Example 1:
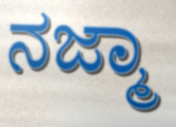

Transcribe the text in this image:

ನಜ್ಮಾ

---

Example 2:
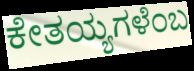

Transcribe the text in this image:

ಕೇತಯ್ಯಗಳೆಂಬ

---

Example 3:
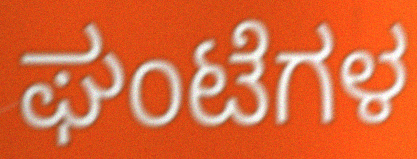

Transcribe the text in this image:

ಘಂಟೆಗಳ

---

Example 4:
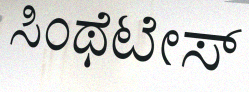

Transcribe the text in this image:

ಸಿಂಥೆಟೇಸ್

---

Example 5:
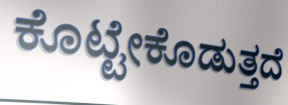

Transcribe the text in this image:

ಕೊಟ್ಟೇಕೊಡುತ್ತದೆ